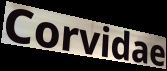
Corvidae